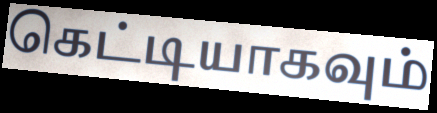
கெட்டியாகவும்